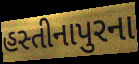
હસ્તીનાપુરના